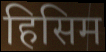
हिसिम